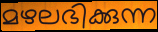
മഴലഭിക്കുന്ന